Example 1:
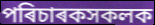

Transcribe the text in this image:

পৰিচাৰকসকলক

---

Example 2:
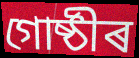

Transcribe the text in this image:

গোষ্ঠীৰ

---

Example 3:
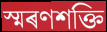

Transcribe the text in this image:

স্মৰণশক্তি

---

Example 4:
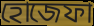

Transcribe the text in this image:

হোজেফা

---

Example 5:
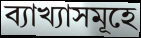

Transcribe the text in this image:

ব্যাখ্যাসমূহে